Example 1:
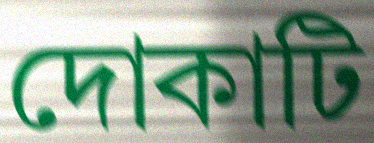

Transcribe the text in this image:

দোকাটি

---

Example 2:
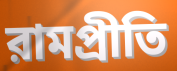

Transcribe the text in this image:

রামপ্রীতি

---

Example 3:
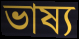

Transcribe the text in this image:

ভাষ্য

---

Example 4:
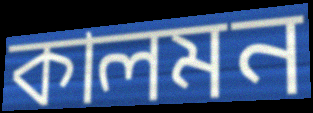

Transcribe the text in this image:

কালমন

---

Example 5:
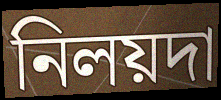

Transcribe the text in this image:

নিলয়দা